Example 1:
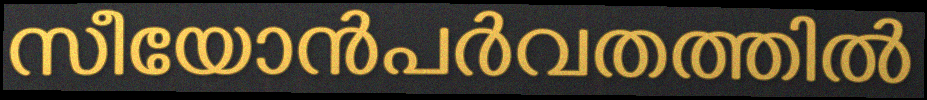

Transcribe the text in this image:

സീയോൻപർവതത്തിൽ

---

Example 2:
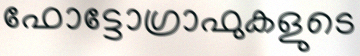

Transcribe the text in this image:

ഫോട്ടോഗ്രാഫുകളുടെ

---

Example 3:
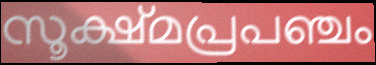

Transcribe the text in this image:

സൂക്ഷ്മപ്രപഞ്ചം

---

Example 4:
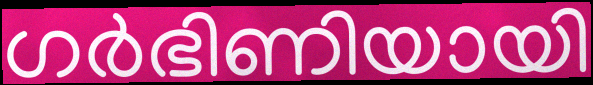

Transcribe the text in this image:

ഗർഭിണിയായി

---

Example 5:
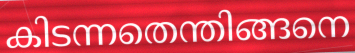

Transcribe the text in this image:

കിടന്നതെന്തിങ്ങനെ